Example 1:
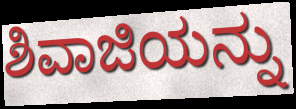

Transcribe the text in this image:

ಶಿವಾಜಿಯನ್ನು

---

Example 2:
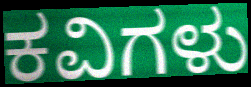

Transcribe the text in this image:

ಕವಿಗಳು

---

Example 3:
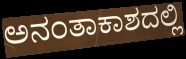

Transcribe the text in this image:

ಅನಂತಾಕಾಶದಲ್ಲಿ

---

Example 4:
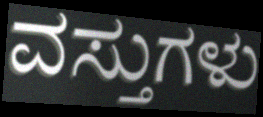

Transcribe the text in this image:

ವಸ್ತುಗಳು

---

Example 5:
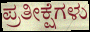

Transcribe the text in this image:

ಪ್ರತೀಕ್ಷೆಗಳು